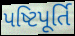
પષ્ટિપૂર્તિ